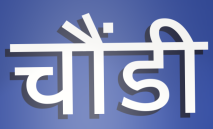
चौंडी